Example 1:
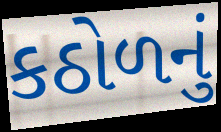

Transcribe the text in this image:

કઠોળનું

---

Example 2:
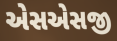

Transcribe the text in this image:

એસએસજી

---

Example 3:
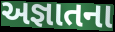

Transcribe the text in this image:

અજ્ઞાતના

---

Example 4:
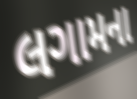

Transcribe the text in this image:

લગામના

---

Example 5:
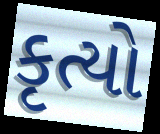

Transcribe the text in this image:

કૃત્યો